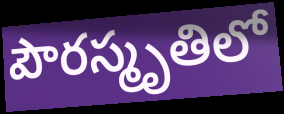
పౌరస్మృతిలో